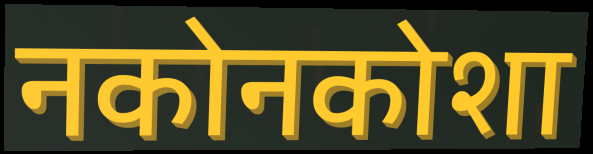
नकोनकोशा